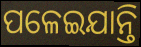
ପଳେଇଯାନ୍ତି